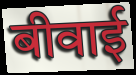
बीवाई